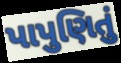
પાપુણિતું